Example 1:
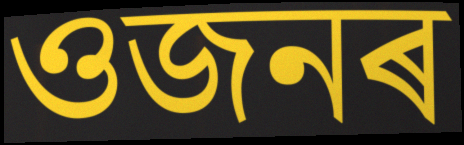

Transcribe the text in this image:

ওজনৰ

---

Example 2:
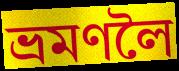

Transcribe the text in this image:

ভ্ৰমণলৈ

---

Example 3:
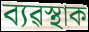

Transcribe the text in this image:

ব্যৱস্থাক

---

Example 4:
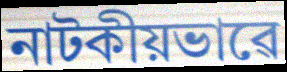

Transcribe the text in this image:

নাটকীয়ভাৱে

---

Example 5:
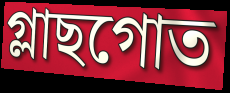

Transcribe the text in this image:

গ্লাছগোত